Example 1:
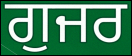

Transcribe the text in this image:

ਗੁਜਰ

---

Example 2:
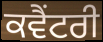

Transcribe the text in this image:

ਕਵੈਂਟਰੀ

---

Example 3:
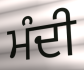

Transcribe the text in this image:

ਮੰਦੀ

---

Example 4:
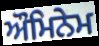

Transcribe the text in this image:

ਔਮਿਨੇਮ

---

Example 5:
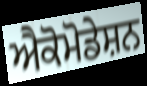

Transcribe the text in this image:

ਐਕੋਮੋਡੇਸ਼ਨ